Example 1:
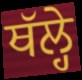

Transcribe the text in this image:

ਥੱਲ੍ਹੇ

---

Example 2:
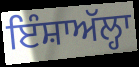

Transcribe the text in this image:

ਇੰਸ਼ਾਅੱਲ੍ਹਾ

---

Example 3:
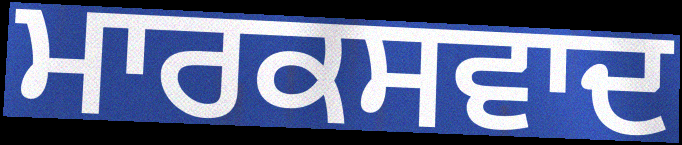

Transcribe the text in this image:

ਮਾਰਕਸਵਾਦ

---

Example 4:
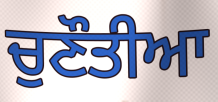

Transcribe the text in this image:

ਚੁਣੌਤੀਆ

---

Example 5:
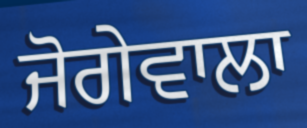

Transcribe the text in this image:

ਜੋਗੇਵਾਲਾ